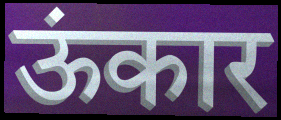
ऊंकार